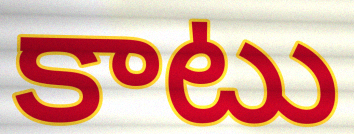
కాటు